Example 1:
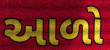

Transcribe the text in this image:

આળો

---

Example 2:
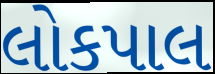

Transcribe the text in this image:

લોકપાલ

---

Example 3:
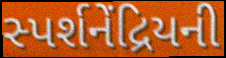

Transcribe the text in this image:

સ્પર્શનેંદ્રિયની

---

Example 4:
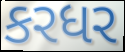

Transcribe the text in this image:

કરધર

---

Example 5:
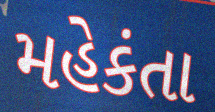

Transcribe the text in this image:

મહેકંતા